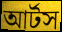
আর্টস